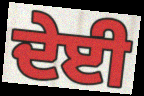
ਦੇਈ